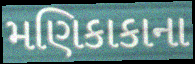
મણિકાકાના